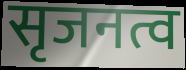
सृजनत्व